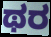
ಥರ